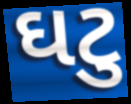
ઘટુ